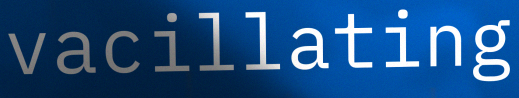
vacillating